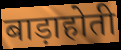
बाड़ाहोती